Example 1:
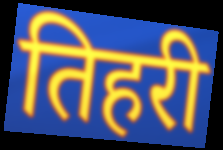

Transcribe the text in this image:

तिहरी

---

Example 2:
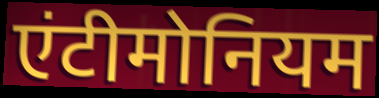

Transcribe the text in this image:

एंटीमोनियम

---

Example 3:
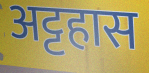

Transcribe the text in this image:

अट्टहास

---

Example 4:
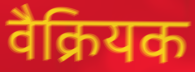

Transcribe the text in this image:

वैक्रियक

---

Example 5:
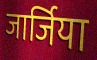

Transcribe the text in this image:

जार्जिया